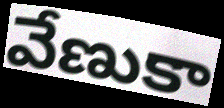
వేణుకా